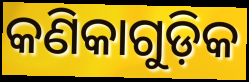
କଣିକାଗୁଡ଼ିକ